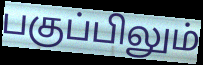
பகுப்பிலும்